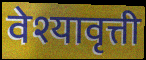
वेश्यावृत्ती